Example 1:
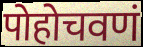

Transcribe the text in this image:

पोहोचवणं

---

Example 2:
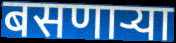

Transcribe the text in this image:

बसणार्‍या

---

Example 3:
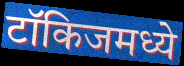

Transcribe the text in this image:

टॉकिजमध्ये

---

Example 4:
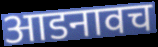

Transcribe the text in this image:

आडनावच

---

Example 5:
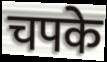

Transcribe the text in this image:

चपके